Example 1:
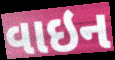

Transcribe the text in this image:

વાઇન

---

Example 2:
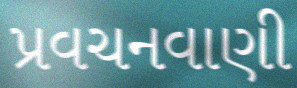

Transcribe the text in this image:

પ્રવચનવાણી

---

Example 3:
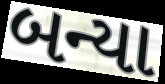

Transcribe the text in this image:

બન્યા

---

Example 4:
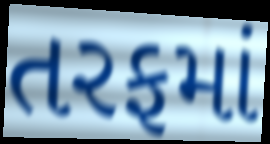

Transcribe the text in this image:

તરફમાં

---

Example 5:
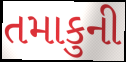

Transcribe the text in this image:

તમાકુની